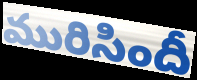
మురిసిందీ